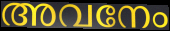
അവനേം